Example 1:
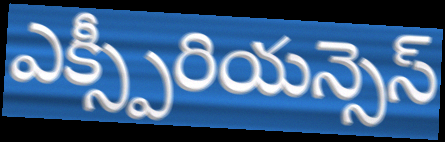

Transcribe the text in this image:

ఎక్స్పీరియన్సెస్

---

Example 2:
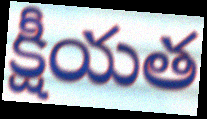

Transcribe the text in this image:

క్షీయత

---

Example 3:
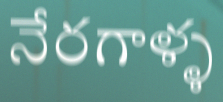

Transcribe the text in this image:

నేరగాళ్ళ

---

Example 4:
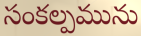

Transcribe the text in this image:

సంకల్పమును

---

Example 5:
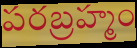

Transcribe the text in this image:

పరబ్రహ్మం